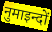
नुमाइन्दों